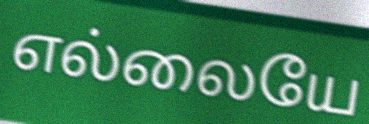
எல்லையே